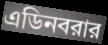
এডিনবরার